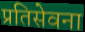
प्रतिसेवना